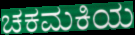
ಚಕಮಕಿಯ